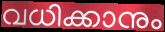
വധിക്കാനും